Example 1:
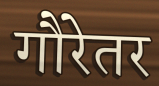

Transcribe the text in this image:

गौरेतर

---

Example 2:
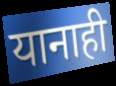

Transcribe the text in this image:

यानाही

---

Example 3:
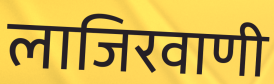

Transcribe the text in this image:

लाजिरवाणी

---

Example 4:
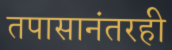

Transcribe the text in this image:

तपासानंतरही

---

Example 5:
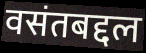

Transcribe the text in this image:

वसंतबद्दल